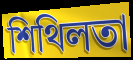
শিথিলতা